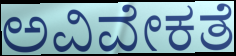
ಅವಿವೇಕತೆ